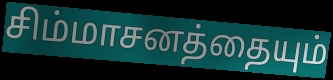
சிம்மாசனத்தையும்